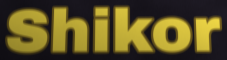
Shikor